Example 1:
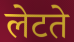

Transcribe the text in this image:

लेटते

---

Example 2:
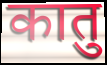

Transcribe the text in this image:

कातु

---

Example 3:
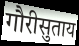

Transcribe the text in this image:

गौरीसुताय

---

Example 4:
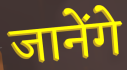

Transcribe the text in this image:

जानेंगे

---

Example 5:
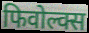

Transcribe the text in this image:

फिवोल्क्स